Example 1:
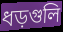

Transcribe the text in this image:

ধড়গুলি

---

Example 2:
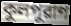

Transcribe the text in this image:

কুলপুরাণ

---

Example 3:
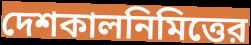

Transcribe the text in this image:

দেশকালনিমিত্তের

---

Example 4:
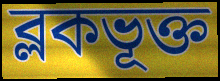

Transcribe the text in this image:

ব্লকভূক্ত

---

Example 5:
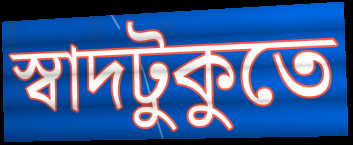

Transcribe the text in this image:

স্বাদটুকুতে